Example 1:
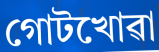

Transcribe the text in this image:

গোটখোৱা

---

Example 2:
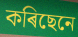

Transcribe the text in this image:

কৰিছেনে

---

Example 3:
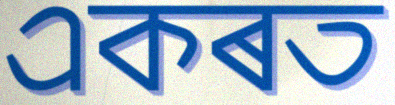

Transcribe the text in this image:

একৰত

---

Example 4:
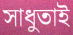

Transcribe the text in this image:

সাধুতাই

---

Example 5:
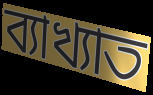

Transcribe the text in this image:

ব্যাখ্যাত